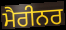
ਮੈਰੀਨਰ